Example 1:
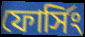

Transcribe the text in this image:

ফোর্সিং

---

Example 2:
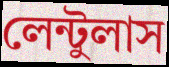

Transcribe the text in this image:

লেন্টুলাস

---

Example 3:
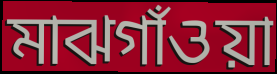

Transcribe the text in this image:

মাঝগাঁওয়া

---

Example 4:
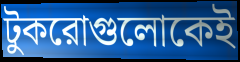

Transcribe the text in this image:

টুকরোগুলোকেই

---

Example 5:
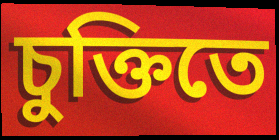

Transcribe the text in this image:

চুক্তিতে